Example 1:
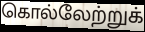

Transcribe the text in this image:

கொல்லேற்றுக்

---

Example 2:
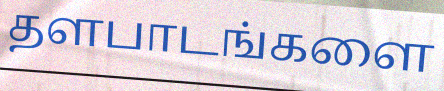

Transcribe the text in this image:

தளபாடங்களை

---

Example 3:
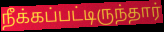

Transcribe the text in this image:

நீக்கப்பட்டிருந்தார்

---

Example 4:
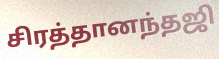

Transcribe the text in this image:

சிரத்தானந்தஜி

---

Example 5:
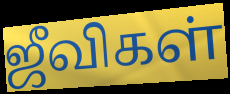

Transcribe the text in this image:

ஜீவிகள்